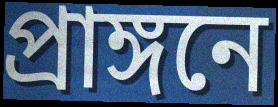
প্রাঙ্গনে